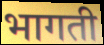
भागती